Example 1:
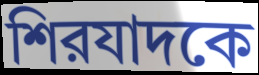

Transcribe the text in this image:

শিরযাদকে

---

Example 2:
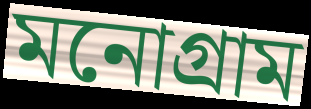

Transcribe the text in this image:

মনোগ্রাম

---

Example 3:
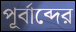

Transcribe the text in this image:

পূর্বাব্দের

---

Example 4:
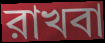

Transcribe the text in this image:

রাখবা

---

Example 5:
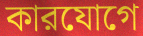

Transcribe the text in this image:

কারযোগে